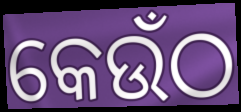
କେଉଁଠ